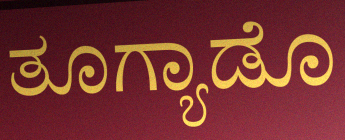
ತೂಗ್ಯಾಡೊ